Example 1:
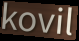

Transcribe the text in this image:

kovil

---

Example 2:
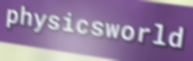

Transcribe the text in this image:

physicsworld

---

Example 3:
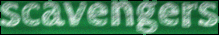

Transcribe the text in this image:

scavengers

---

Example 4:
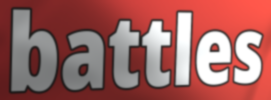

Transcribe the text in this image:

battles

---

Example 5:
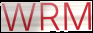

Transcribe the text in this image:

WRM